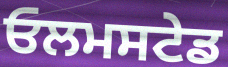
ਓਲਮਸਟੇਡ